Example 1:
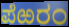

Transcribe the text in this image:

ಪೆಱರಂ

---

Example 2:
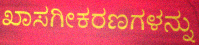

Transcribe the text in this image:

ಖಾಸಗೀಕರಣಗಳನ್ನು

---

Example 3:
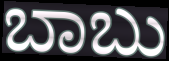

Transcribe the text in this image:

ಬಾಬು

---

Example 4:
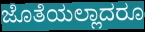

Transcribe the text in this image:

ಜೊತೆಯಲ್ಲಾದರೂ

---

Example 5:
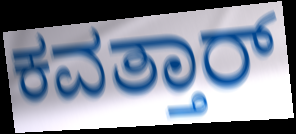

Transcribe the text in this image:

ಕವತ್ತಾರ್